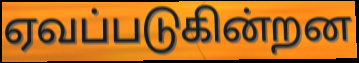
ஏவப்படுகின்றன